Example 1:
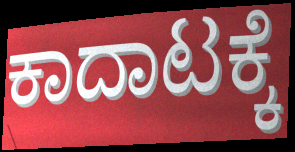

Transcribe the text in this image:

ಕಾದಾಟಕ್ಕೆ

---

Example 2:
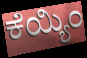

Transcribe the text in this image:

ಕೆಯ್ಯಿಂ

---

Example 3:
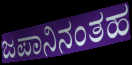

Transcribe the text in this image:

ಜಪಾನಿನಂತಹ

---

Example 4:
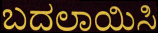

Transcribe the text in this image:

ಬದಲಾಯಿಸಿ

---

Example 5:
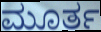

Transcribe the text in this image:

ಮೂರ್ತ